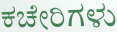
ಕಚೇರಿಗಳು